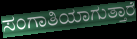
ಸಂಗಾತಿಯಾಗುತ್ತಾರೆ